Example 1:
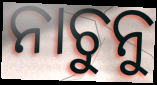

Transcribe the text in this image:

ନାଚୁନୁ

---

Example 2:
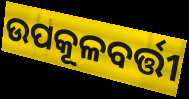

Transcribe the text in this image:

ଉପକୂଳବର୍ତ୍ତୀ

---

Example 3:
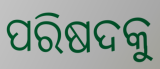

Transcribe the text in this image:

ପରିଷଦକୁ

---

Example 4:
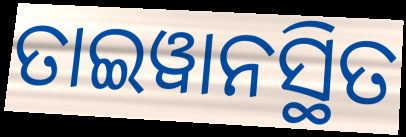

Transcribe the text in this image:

ତାଇୱାନସ୍ଥିତ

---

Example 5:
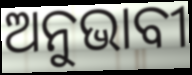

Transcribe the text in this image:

ଅନୁଭାବୀ